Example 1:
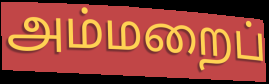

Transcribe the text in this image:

அம்மறைப்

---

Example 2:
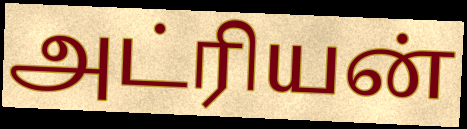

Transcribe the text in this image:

அட்ரியன்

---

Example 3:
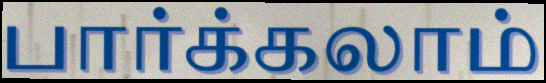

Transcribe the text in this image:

பார்க்கலாம்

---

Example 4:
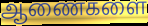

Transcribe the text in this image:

ஆணைகளை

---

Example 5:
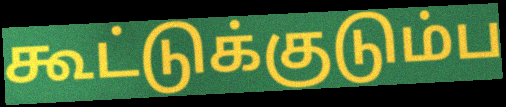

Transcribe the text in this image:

கூட்டுக்குடும்ப